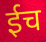
ईच